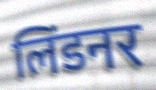
लिंडनर